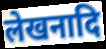
लेखनादि